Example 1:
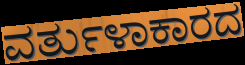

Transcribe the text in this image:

ವರ್ತುಳಾಕಾರದ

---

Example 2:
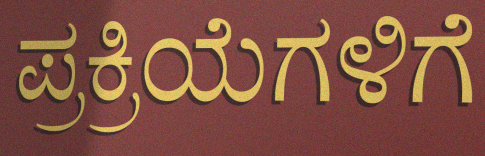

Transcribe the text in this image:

ಪ್ರಕ್ರಿಯೆಗಳಿಗೆ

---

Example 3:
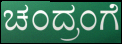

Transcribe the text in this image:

ಚಂದ್ರಂಗೆ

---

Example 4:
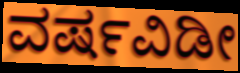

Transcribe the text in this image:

ವರ್ಷವಿಡೀ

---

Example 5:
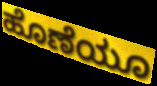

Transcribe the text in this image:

ಹೊಣೆಯೂ